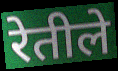
रेतीले